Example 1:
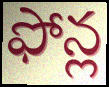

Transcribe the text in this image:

ఫోన్ల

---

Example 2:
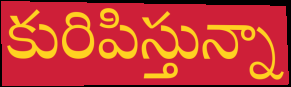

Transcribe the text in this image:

కురిపిస్తున్నా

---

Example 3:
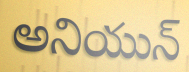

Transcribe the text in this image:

అనియున్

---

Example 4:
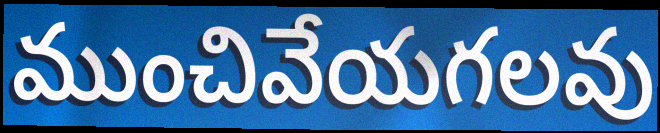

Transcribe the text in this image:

ముంచివేయగలవు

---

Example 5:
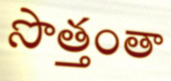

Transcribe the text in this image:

సొత్తంతా